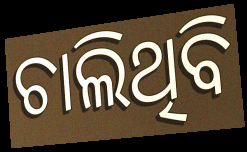
ଚାଲିଥିବି